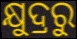
କ୍ଷୁଦ୍ରରୁ